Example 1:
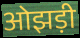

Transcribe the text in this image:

ओझड़ी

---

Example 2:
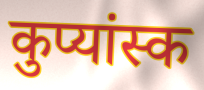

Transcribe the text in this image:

कुप्यांस्क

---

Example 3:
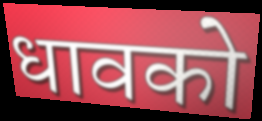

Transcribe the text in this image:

धावको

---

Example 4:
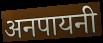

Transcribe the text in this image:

अनपायनी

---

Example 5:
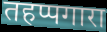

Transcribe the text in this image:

तहप्पगारा